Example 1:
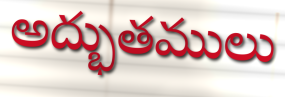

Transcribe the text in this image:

అద్భుతములు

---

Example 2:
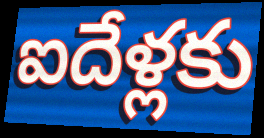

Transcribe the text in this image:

ఐదేళ్లకు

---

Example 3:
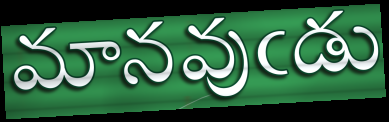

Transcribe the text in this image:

మానవుఁడు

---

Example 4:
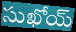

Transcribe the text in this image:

సుఖోయ్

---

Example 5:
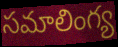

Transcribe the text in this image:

సమాలింగ్య